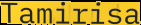
Tamirisa